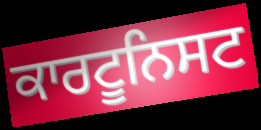
ਕਾਰਟੂਨਿਸਟ